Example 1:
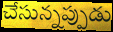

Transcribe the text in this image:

చేసున్నప్పుడు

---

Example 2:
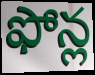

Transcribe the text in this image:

ఫోన్ల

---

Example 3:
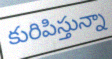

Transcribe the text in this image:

కురిపిస్తున్నా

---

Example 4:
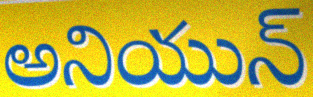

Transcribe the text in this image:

అనియున్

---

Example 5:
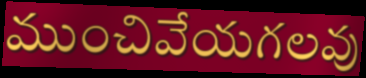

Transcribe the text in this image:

ముంచివేయగలవు